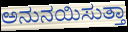
ಅನುನಯಿಸುತ್ತಾ